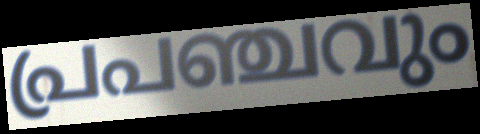
പ്രപഞ്ചവും